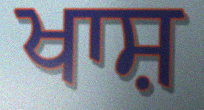
ਖਾਸ਼